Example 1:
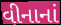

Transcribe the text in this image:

વીનાનાં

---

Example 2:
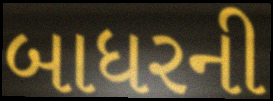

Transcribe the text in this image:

બાધરની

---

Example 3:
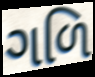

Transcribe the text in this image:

ગળિ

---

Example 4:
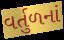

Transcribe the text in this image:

વર્તુળનાં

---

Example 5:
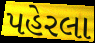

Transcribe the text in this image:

પહેરલા